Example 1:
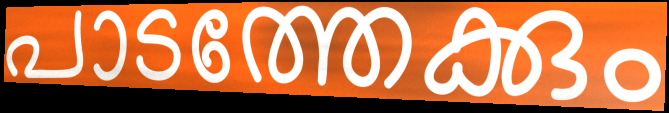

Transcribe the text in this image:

പാടത്തേക്കും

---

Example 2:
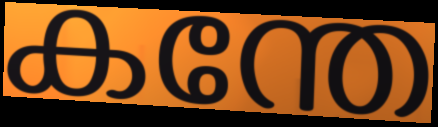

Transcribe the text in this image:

കന്തേ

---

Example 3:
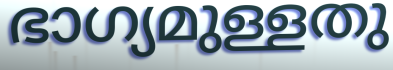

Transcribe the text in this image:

ഭാഗ്യമുള്ളതു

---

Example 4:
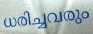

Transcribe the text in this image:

ധരിച്ചവരും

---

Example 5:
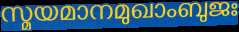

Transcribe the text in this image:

സ്മയമാനമുഖാംബുജഃ